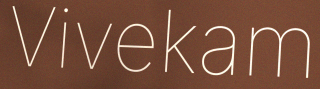
Vivekam